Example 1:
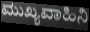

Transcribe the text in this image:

ಮುಖ್ಯವಾಹಿನಿ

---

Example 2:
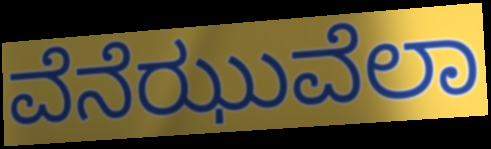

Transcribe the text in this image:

ವೆನೆಝುವೆಲಾ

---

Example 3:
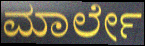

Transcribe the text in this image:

ಮಾರ್ಲೇ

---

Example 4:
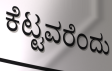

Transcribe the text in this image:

ಕೆಟ್ಟವರೆಂದು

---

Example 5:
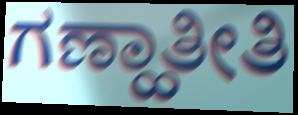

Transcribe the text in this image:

ಗಣ್ಹಾತೀತಿ